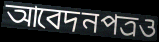
আবেদনপত্রও